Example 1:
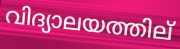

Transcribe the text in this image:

വിദ്യാലയത്തില്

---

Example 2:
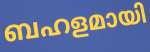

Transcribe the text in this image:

ബഹളമായി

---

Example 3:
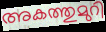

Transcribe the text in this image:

അകത്തുമുറി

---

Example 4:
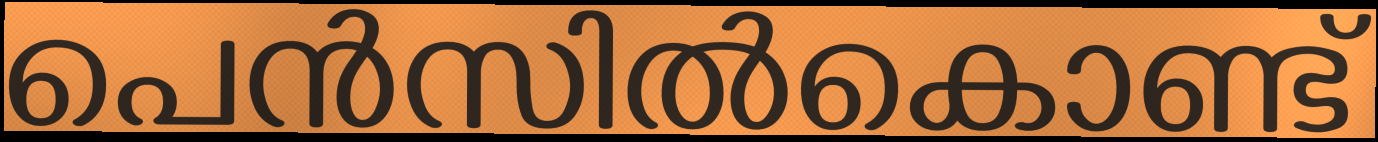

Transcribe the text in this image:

പെൻസിൽകൊണ്ട്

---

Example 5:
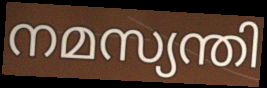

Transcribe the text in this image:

നമസ്യന്തി